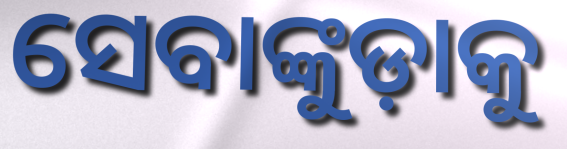
ସେବାଙ୍କୁଡ଼ାକୁ